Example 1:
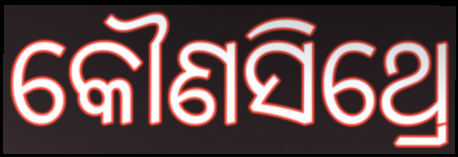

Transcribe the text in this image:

କୌଣସିଥ୍ରେ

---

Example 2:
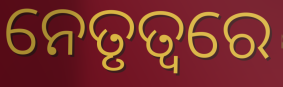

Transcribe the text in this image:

ନେତୃତ୍ଵରେ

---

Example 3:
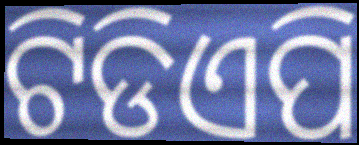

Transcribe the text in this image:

ଟିଡିଏପି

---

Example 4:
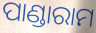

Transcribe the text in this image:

ପାଣ୍ଡାରାମ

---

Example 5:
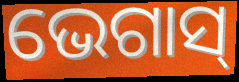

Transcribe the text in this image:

ଭେଗାସ୍